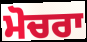
ਮੋਚਰਾ